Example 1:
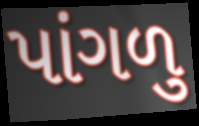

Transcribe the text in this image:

પાંગળુ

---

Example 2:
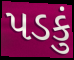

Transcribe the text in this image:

પડકું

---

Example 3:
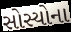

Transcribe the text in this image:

સોસ્યોના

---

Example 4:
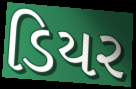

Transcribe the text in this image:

ડિયર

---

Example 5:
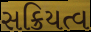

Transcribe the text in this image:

સક્રિયત્વ